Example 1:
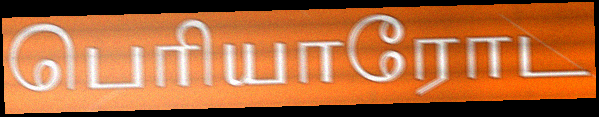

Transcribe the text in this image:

பெரியாரோட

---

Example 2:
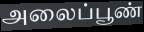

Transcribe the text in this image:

அலைப்பூண்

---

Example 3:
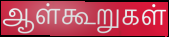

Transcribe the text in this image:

ஆள்கூறுகள்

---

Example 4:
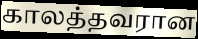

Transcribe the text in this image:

காலத்தவரான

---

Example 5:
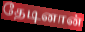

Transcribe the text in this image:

தேடினான்